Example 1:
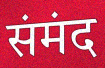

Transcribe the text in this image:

संमंद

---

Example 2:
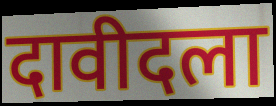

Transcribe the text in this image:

दावीदला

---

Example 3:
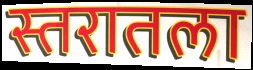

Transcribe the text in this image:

स्तरातला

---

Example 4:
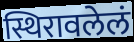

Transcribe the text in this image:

स्थिरावलेलं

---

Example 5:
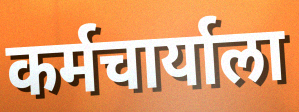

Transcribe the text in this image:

कर्मचार्याला